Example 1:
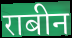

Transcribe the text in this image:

राबीन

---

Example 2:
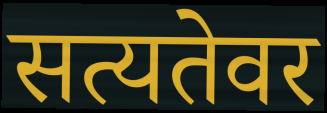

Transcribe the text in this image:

सत्यतेवर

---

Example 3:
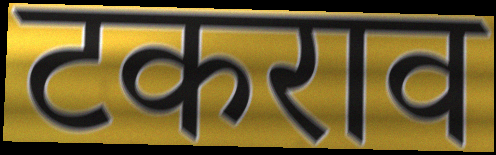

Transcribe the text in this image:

टकराव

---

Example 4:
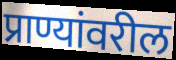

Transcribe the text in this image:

प्राण्यांवरील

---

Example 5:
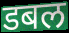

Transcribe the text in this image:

डबल